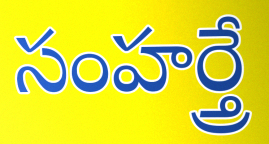
సంహర్త్రే